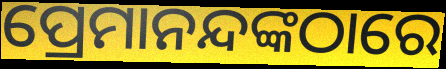
ପ୍ରେମାନନ୍ଦଙ୍କଠାରେ